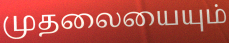
முதலையையும்